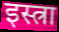
इस्त्रा